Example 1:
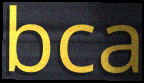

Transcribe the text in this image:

bca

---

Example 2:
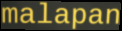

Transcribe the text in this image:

malapan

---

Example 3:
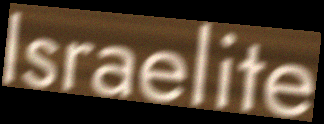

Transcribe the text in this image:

Israelite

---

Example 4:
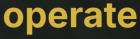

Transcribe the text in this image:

operate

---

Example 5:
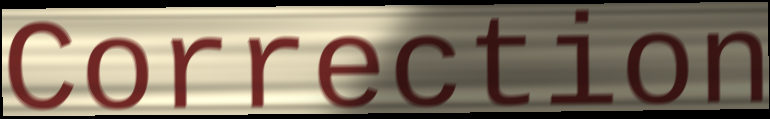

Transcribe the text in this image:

Correction